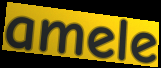
amele